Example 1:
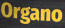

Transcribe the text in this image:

Organo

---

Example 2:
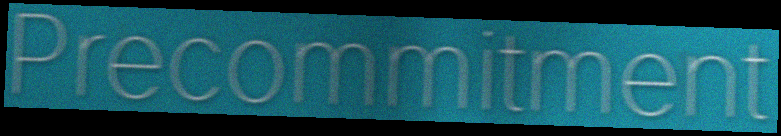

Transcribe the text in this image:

Precommitment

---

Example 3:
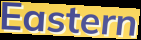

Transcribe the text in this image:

Eastern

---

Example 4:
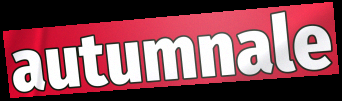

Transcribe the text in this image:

autumnale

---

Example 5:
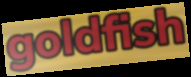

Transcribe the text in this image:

goldfish